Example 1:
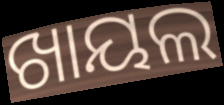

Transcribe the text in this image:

ଖାୟଲ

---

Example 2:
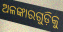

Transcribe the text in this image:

ଅଳଙ୍କାରଗୁଡ଼ିକୁ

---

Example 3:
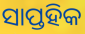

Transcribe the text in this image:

ସାପ୍ତହିକ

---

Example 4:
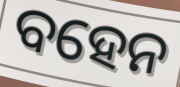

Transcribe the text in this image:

ବହେନ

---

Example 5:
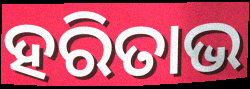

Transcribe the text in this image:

ହରିତାଭ